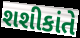
શશીકાંતે